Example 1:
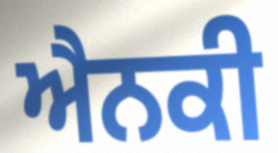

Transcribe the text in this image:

ਐਨਕੀ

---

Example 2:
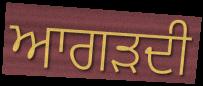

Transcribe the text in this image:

ਆਗੜਦੀ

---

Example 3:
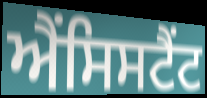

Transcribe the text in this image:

ਐਂਸਿਸਟੈਂਟ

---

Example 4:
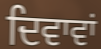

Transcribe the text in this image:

ਦਿਵਾਵਾਂ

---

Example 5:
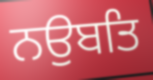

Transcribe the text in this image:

ਨਉਬਤਿ